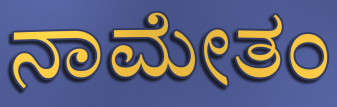
ನಾಮೇತಂ